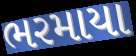
ભરમાયા